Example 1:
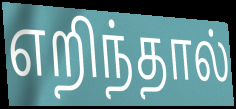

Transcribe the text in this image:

எறிந்தால்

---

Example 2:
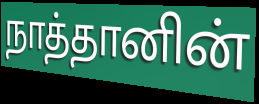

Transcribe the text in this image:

நாத்தானின்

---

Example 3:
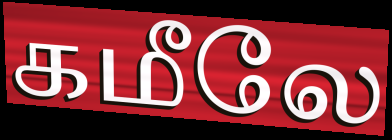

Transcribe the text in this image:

கமீலே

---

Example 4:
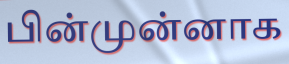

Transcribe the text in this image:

பின்முன்னாக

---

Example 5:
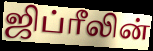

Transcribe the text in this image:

ஜிப்ரீலின்